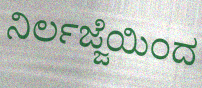
ನಿರ್ಲಜ್ಜೆಯಿಂದ